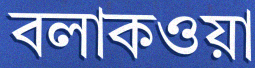
বলাকওয়া